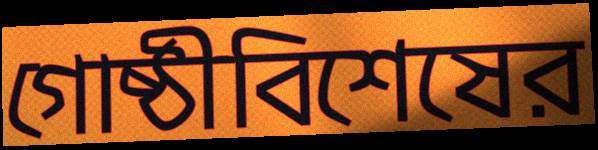
গোষ্ঠীবিশেষের